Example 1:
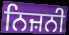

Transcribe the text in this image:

ਨਿਜ਼ਨੀ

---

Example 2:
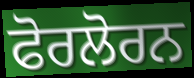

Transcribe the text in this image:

ਫੋਰਲੋਰਨ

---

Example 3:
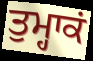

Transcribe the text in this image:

ਤੁਮ੍ਹਾਕਂ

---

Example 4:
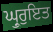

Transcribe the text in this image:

ਘ੍ਰੁਰੁਇਤ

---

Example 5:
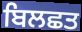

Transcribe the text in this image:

ਬਿਲਛਤ